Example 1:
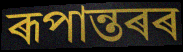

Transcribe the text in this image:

ৰূপান্তৰৰ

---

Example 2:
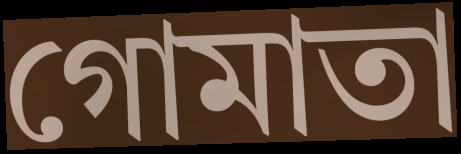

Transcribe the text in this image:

গোমাতা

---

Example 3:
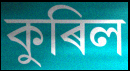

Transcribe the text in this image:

কুৰিল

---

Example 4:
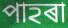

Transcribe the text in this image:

পাহৰা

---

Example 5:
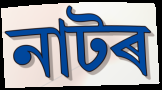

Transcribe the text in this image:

নাটৰ